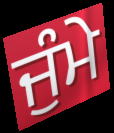
ਜੁੰਮੇ